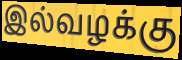
இல்வழக்கு